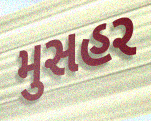
મુસહર